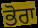
ਭੋਰਾ